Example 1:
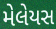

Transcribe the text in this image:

મેલેયસ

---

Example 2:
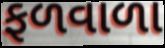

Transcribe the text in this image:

ફળવાળા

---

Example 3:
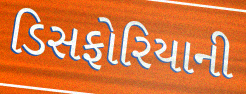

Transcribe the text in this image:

ડિસફોરિયાની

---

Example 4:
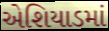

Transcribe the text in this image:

એશિયાડમાં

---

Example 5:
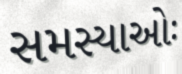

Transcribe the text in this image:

સમસ્યાઓઃ